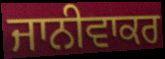
ਜਾਨੀਵਾਕਰ